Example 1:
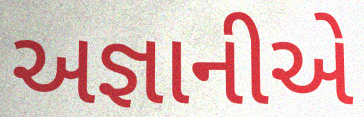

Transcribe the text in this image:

અજ્ઞાનીએ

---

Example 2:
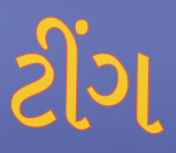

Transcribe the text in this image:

ટીંગ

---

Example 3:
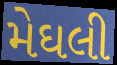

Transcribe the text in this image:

મેઘલી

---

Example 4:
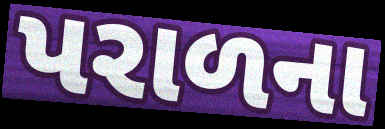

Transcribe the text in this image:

પરાળના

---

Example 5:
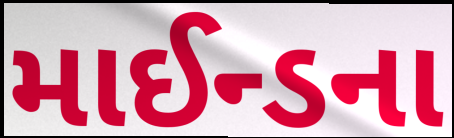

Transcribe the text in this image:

માઈન્ડના